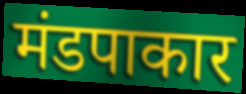
मंडपाकार